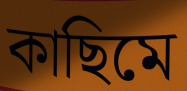
কাছিমে